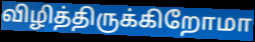
விழித்திருக்கிறோமா